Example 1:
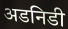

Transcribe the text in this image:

अडनिडी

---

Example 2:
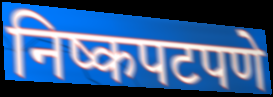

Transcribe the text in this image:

निष्कपटपणे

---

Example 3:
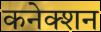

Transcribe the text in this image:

कनेक्‍शन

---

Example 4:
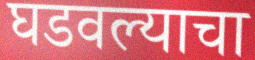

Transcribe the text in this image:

घडवल्याचा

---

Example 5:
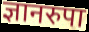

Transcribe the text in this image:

ज्ञानरुपा